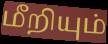
மீறியும்